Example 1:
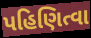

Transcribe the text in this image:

પહિણિત્વા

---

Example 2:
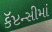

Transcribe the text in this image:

કૅપ્ટન્સીમાં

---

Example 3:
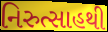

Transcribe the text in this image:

નિરુત્સાહથી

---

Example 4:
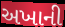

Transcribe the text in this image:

અખાની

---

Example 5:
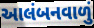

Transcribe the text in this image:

આલંબનવાળું